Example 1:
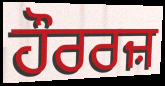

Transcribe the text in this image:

ਹੌਰਰਜ਼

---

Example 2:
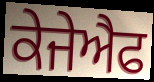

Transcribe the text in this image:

ਕੇਜੇਐਫ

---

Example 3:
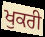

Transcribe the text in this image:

ਖੁਕਰੀ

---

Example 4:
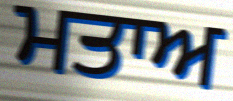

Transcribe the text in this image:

ਮਤਾਅ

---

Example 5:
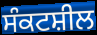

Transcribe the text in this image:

ਸੰਕਟਸ਼ੀਲ